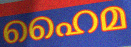
ഹൈമ